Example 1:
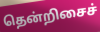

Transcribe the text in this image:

தென்றிசைச்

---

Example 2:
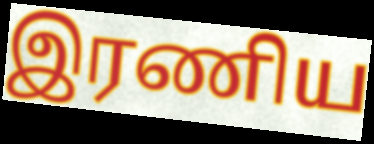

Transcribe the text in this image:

இரணிய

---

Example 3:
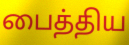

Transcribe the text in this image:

பைத்திய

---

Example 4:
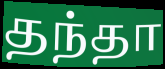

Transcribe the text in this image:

தந்தா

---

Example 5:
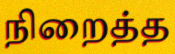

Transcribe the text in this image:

நிறைத்த